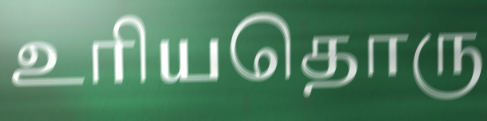
உரியதொரு